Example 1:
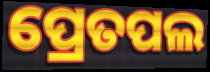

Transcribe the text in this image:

ପ୍ରେତପଲ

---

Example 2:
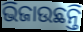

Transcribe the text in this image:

ଭିଜାଉଛନ୍ତି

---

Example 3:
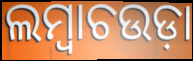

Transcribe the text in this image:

ଲମ୍ବାଚଉଡ଼ା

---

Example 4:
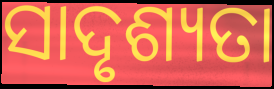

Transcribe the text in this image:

ସାଦୃଶ୍ୟତା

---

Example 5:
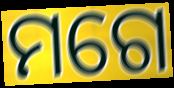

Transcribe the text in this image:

ମଗେ